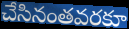
చేసినంతవరకూ